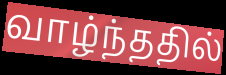
வாழ்ந்ததில்